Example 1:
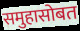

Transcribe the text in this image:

समुहासोबत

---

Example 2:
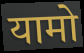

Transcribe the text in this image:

यामो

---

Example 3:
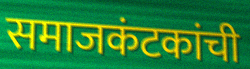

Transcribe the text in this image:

समाजकंटकांची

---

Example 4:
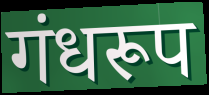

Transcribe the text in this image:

गंधरूप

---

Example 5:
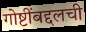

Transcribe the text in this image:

गोष्टींबद्दलची